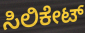
ಸಿಲಿಕೇಟ್